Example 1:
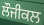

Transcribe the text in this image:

ਲੌਜੀਕਲ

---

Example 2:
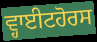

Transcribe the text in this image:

ਵ੍ਹਾਈਟਹੋਰਸ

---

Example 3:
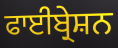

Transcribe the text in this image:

ਫਾਈਬ੍ਰੇਸ਼ਨ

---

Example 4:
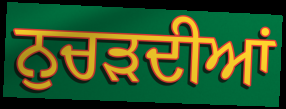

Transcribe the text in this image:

ਨੁਚੜਦੀਆਂ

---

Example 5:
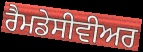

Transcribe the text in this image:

ਰੈਮਡੇਸੀਵੀਅਰ